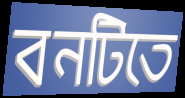
বনটিতে